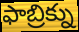
ఫాబ్రిక్ను